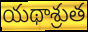
యథాశ్రుత